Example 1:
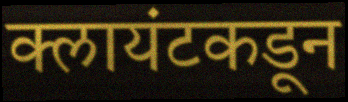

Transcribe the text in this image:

क्लायंटकडून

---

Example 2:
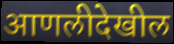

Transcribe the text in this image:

आणलीदेखील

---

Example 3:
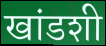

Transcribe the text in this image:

खांडशी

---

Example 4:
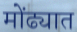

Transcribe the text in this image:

मोंढ्यात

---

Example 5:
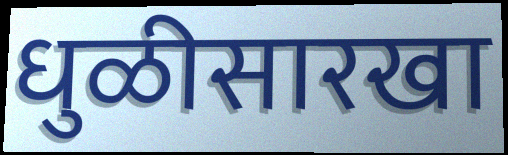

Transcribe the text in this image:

धुळीसारखा